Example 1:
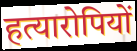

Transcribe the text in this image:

हत्‍यारोपियों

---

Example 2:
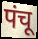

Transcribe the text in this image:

पंचू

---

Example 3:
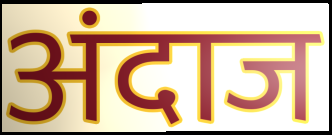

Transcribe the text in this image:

अंदाज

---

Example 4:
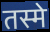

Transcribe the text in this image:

तस्मे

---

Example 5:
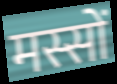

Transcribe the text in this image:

मस्सों